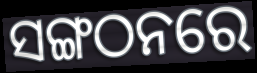
ସଙ୍ଗଠନରେ